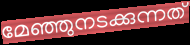
മേഞ്ഞുനടക്കുന്നത്